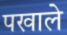
पखाले